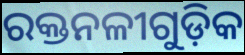
ରକ୍ତନଳୀଗୁଡ଼ିକ